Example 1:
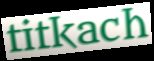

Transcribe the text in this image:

titkach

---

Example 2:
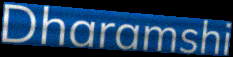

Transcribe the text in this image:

Dharamshi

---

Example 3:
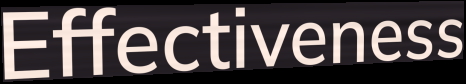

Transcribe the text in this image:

Effectiveness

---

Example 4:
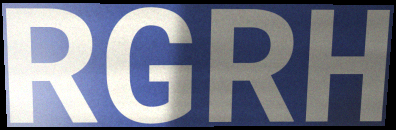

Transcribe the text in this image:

RGRH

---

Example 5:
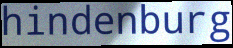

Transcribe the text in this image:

hindenburg